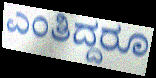
ಎಂತಿದ್ದರೂ